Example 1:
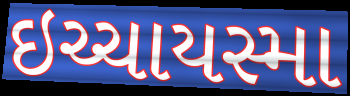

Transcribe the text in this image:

ઇચ્ચાયસ્મા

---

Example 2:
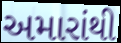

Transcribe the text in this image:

અમારાંથી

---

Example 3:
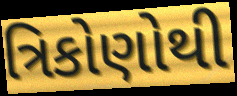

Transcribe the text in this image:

ત્રિકોણોથી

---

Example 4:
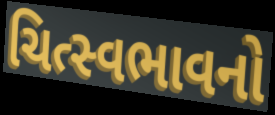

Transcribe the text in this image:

ચિત્સ્વભાવનો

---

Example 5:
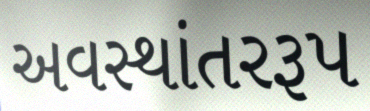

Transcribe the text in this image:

અવસ્થાંતરરૂપ